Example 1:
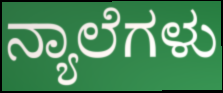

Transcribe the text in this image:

ನ್ಯಾಲೆಗಳು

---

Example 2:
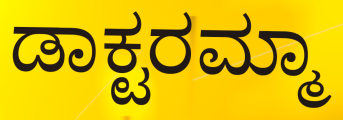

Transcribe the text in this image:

ಡಾಕ್ಟರಮ್ಮಾ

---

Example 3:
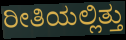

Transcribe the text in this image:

ರೀತಿಯಲ್ಲಿತ್ತು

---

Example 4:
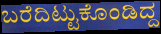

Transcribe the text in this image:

ಬರೆದಿಟ್ಟುಕೊಂಡಿದ್ದ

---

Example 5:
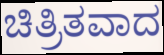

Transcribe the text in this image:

ಚಿತ್ರಿತವಾದ